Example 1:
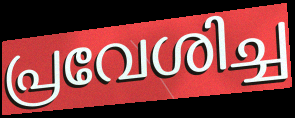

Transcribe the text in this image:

പ്രവേശിച്ച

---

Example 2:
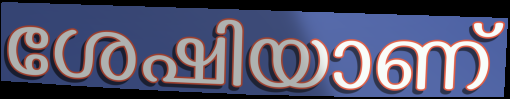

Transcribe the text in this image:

ശേഷിയാണ്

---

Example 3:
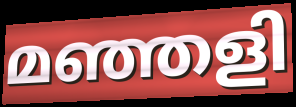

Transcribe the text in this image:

മഞ്ഞളി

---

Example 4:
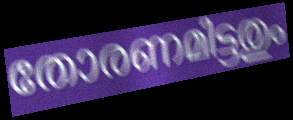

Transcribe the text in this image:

തോരണമിട്ടതും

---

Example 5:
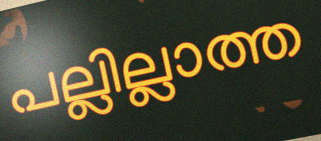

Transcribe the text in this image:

പല്ലില്ലാത്ത